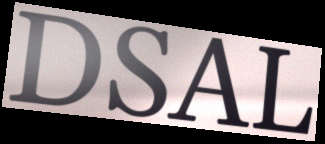
DSAL